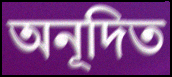
অনূদিত